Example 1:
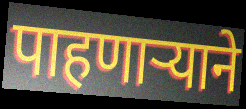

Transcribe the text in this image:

पाहणार्‍याने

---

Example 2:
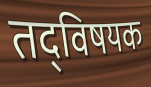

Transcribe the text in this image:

तद्‌विषयक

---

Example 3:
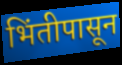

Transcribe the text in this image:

भिंतीपासून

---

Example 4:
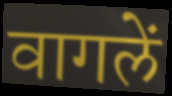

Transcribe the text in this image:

वागलें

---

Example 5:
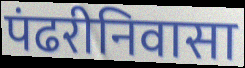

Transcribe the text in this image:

पंढरीनिवासा